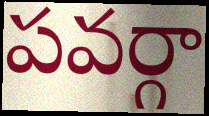
పవర్గా